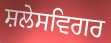
ਸ਼ਲੇਸਵਿਗਰ